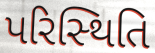
પરિસ્‍થિતિ